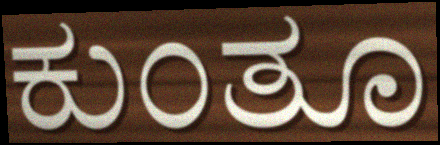
ಕುಂತೂ